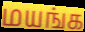
மயங்க